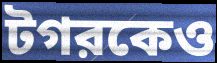
টগরকেও